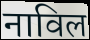
नाविल